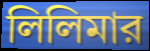
লিলিমার